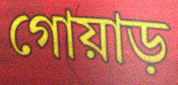
গোয়াড়